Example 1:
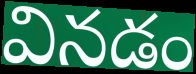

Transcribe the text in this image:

వినడం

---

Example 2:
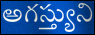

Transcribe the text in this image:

అగస్త్యుని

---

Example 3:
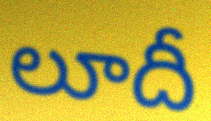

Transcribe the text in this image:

లూదీ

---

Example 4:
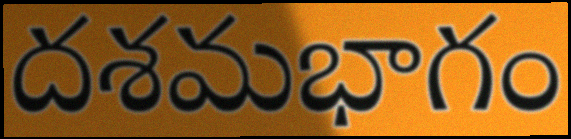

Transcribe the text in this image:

దశమభాగం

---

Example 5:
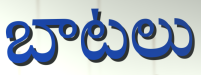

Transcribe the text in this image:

బాటలు